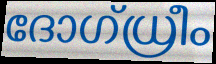
ദോഗ്ധ്രീം